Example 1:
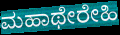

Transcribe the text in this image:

ಮಹಾಥೇರೇಹಿ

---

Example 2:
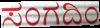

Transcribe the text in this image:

ಸಂಗದಿಂ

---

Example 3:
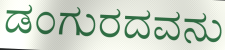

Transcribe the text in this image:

ಡಂಗುರದವನು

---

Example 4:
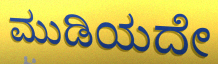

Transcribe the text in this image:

ಮುಡಿಯದೇ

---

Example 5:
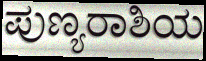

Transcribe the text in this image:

ಪುಣ್ಯರಾಶಿಯ